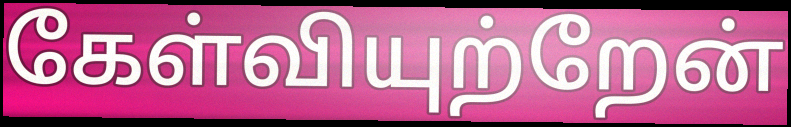
கேள்வியுற்றேன்